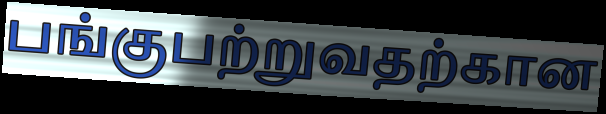
பங்குபற்றுவதற்கான